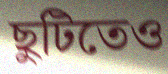
ছুটিতেও